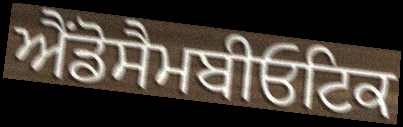
ਐਂਡੋਸੈਮਬੀਓਟਿਕ